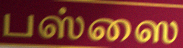
பஸ்ஸை